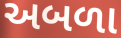
અબળા